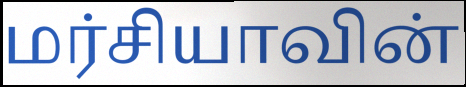
மர்சியாவின்